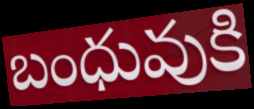
బంధువుకి